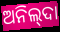
ଅନିଲ୍‌ଦା